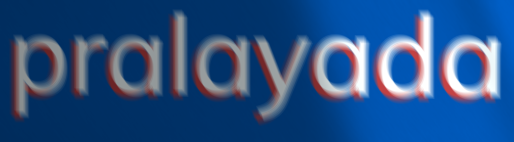
pralayada